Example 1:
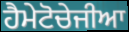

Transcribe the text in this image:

ਹੈਮੇਟੋਚੇਜੀਆ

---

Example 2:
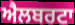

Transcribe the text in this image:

ਐਲਬਰਟਾ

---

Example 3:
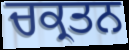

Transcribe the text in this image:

ਚਕ੍ਰਤਨ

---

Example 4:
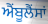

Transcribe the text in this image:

ਐੰਬੂਲੈਂਸਾਂ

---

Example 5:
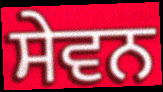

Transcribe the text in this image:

ਸੇਵਨ